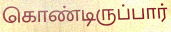
கொண்டிருப்பார்